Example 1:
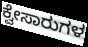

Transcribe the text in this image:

ಕ್ವೇಸಾರುಗಳ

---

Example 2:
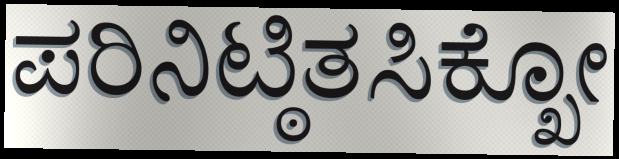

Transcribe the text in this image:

ಪರಿನಿಟ್ಠಿತಸಿಕ್ಖೋ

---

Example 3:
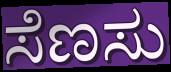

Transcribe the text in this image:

ಸೆಣಸು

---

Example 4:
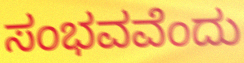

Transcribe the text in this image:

ಸಂಭವವೆಂದು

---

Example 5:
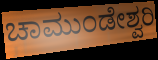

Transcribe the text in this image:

ಚಾಮುಂಡೇಶ್ವರಿ